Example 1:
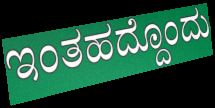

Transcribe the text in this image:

ಇಂತಹದ್ದೊಂದು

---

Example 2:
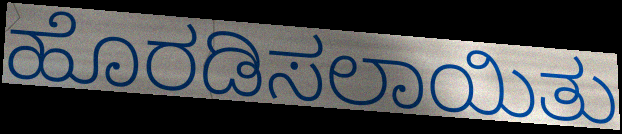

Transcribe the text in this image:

ಹೊರಡಿಸಲಾಯಿತು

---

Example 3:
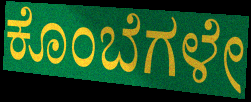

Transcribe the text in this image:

ಕೊಂಬೆಗಳೇ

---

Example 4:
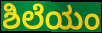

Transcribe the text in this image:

ಶಿಲೆಯಂ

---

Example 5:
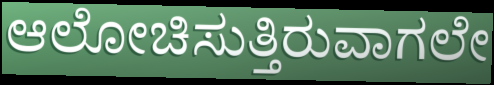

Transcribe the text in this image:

ಆಲೋಚಿಸುತ್ತಿರುವಾಗಲೇ